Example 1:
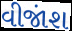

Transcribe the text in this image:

વીજાંશ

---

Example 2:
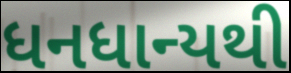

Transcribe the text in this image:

ધનધાન્યથી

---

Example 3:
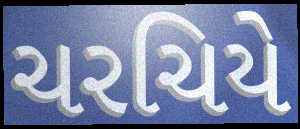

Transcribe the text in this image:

ચરચિયે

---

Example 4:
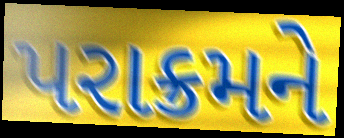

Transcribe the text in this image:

પરાક્રમને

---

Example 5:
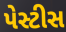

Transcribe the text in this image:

પેસ્ટીસ